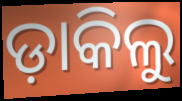
ଡ଼ାକିଲୁ